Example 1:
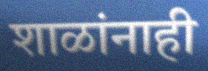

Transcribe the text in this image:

शाळांनाही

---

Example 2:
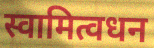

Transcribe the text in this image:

स्वामित्वधन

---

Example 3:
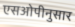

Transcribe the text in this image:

एसओपीनुसार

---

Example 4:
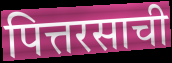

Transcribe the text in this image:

पित्तरसाची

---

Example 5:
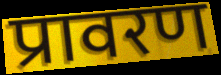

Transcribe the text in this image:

प्रावरण